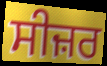
ਸੀਜ਼ਰ